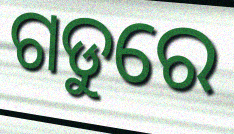
ଗଡୁରେ